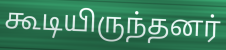
கூடியிருந்தனர்